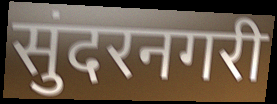
सुंदरनगरी